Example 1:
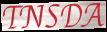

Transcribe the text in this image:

TNSDA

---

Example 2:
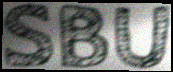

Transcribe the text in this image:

SBU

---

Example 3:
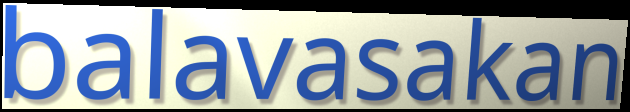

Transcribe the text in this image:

balavasakan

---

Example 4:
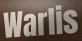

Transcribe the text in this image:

Warlis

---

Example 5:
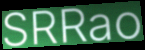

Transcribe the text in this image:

SRRao